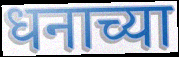
धनाच्या